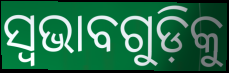
ସ୍ୱଭାବଗୁଡ଼ିକୁ